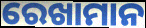
ରେଖାମାନ